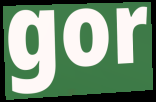
gor